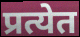
प्रत्येत